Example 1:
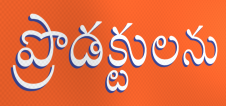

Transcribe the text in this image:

ప్రొడక్టులను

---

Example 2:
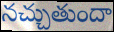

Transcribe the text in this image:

నచ్చుతుందా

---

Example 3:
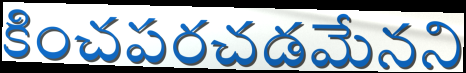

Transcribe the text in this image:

కించపరచడమేనని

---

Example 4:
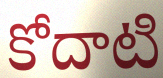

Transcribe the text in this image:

కోదాటి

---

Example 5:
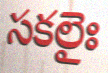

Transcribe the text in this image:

సకలైః